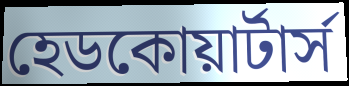
হেডকোয়ার্টার্স